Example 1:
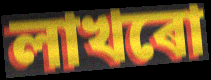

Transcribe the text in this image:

লাখৰো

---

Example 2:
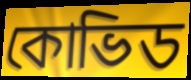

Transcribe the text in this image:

কোভিড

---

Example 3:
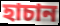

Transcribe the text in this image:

হাচান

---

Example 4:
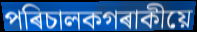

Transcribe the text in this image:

পৰিচালকগৰাকীয়ে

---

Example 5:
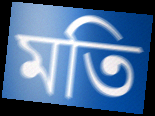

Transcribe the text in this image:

মতি